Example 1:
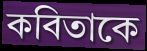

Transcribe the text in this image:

কবিতাকে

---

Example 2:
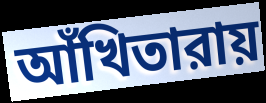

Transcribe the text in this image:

আঁখিতারায়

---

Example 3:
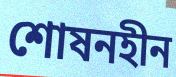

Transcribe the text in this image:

শোষনহীন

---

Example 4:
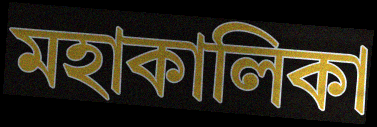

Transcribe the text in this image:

মহাকালিকা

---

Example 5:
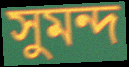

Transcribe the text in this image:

সুমন্দ